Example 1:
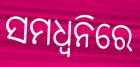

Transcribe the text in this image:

ସମଧ୍ୱନିରେ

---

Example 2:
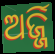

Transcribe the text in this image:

ଅର୍ଜ୍ଜି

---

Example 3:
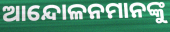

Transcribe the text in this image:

ଆନ୍ଦୋଳନମାନଙ୍କୁ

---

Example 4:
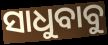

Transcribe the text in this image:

ସାଧୁବାବୁ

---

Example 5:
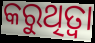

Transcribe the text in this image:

କରୁଥିତ୍ବା